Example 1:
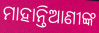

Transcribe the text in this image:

ମାହାନ୍ତିଆଣୀଙ୍କ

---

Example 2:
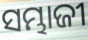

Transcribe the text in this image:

ସମ୍ଭାଜୀ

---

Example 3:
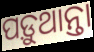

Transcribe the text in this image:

ପଡ଼ୁଥାନ୍ତା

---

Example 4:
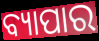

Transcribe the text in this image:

ବ୍ଯାପାର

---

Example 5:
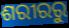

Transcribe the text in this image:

ଶରୀରରୁ